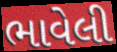
ભાવેલી